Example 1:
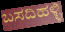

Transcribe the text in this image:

ಬಸದಿಹಳ್ಳಿ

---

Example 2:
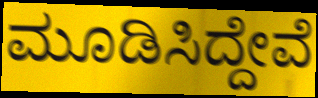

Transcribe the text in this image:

ಮೂಡಿಸಿದ್ದೇವೆ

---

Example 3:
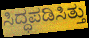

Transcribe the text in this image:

ಸಿದ್ಧಪಡಿಸಿತ್ತು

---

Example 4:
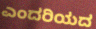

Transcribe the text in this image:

ಎಂದರಿಯದ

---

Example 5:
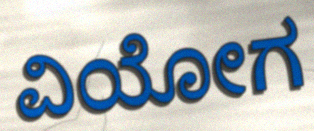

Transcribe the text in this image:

ವಿಯೋಗ